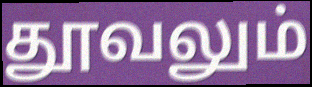
தூவலும்